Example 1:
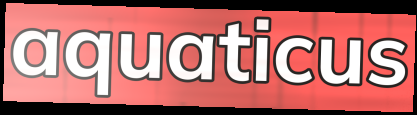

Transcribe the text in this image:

aquaticus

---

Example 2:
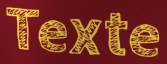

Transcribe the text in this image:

Texte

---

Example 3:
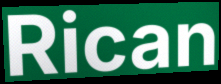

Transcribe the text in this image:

Rican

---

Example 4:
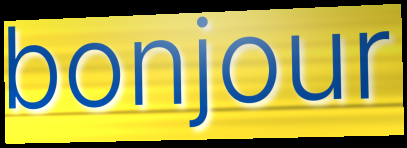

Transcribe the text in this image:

bonjour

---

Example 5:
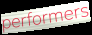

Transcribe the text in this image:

performers